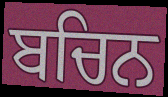
ਬਚਿਨ